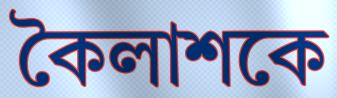
কৈলাশকে